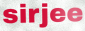
sirjee